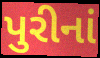
પુરીનાં